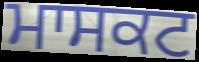
ਮਾਸਕਟ